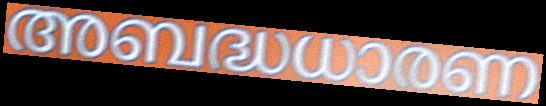
അബദ്ധധാരണ